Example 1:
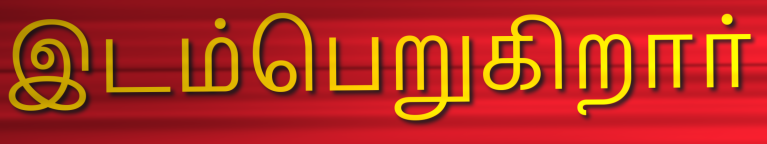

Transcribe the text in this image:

இடம்பெறுகிறார்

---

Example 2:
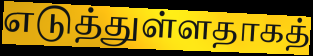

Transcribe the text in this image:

எடுத்துள்ளதாகத்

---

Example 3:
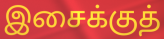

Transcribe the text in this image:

இசைக்குத்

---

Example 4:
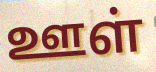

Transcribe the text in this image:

ஊள்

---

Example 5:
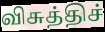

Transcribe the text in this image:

விசுத்திச்